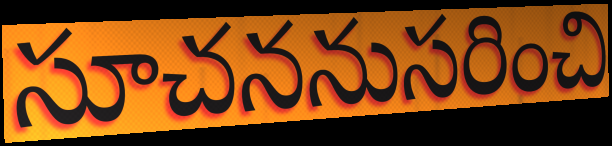
సూచననుసరించి